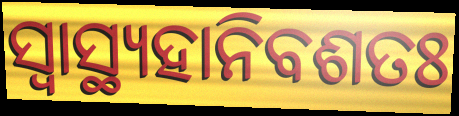
ସ୍ୱାସ୍ଥ୍ୟହାନିବଶତଃ